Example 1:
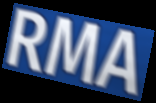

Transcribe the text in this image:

RMA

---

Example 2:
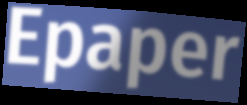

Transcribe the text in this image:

Epaper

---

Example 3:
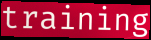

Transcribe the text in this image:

training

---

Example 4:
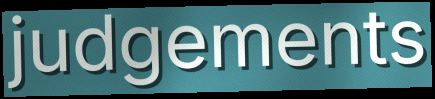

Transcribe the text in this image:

judgements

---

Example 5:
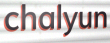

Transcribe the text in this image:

chalyun